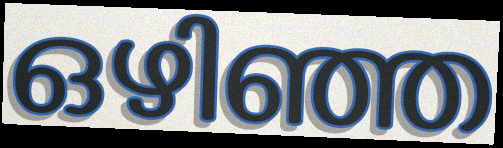
ഒഴിഞ്ഞ